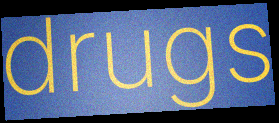
drugs